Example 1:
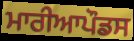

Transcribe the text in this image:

ਮਾਰੀਆਪੌਡਸ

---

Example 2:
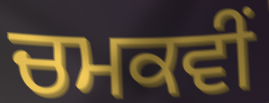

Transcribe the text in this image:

ਚਮਕਵੀਂ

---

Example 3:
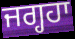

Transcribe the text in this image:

ਜਗ੍ਹਹਾ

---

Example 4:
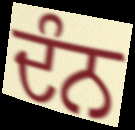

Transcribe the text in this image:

ਦੰਨ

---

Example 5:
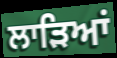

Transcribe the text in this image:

ਲਾੜਿਆਂ